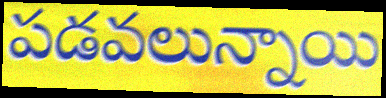
పడవలున్నాయి